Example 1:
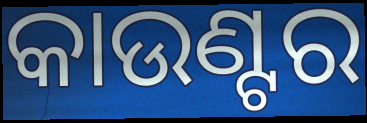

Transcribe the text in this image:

କାଉଣ୍ଟର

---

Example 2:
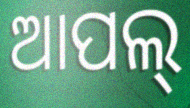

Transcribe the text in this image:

ଆପଲ୍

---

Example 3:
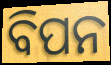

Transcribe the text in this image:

ବିପନ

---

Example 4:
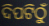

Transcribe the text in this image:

ଦିପଟିଠୁଁ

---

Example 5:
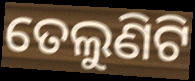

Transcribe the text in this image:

ତେଲୁଣିଟି